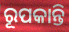
ରୂପକାନ୍ତି